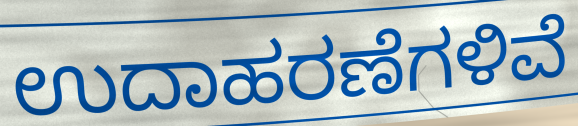
ಉದಾಹರಣೆಗಳಿವೆ